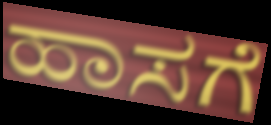
ಹಾಸಗೆ